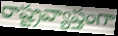
రాష్ట్రవ్యాప్తంగా